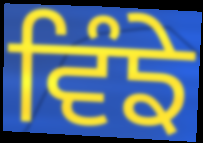
ਵਿੰਙੇ